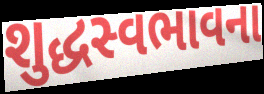
શુદ્ધસ્વભાવના